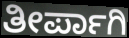
ತೀರ್ಪಾಗಿ